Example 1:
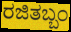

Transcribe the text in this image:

ರಜಿತಬ್ಬಂ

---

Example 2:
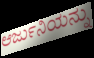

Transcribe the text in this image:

ಆರ್ಜುನಿಯನ್ನು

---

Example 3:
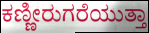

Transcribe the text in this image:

ಕಣ್ಣೀರುಗರೆಯುತ್ತಾ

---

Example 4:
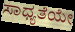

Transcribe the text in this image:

ಸಾಧ್ಯತೆಯೇ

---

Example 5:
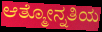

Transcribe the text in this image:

ಆತ್ಮೋನ್ನತಿಯ